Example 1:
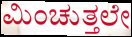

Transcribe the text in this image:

ಮಿಂಚುತ್ತಲೇ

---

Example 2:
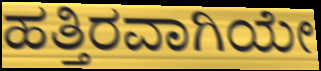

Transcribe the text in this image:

ಹತ್ತಿರವಾಗಿಯೇ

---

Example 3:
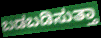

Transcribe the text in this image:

ಬಡಬಡಿಸುತ್ತಾ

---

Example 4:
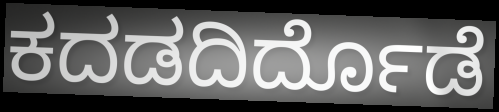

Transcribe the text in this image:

ಕದಡದಿರ್ದೊಡೆ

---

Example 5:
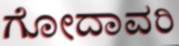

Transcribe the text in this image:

ಗೋದಾವರಿ